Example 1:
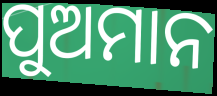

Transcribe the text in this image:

ପୁଅମାନ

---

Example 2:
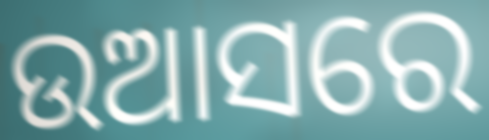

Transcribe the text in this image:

ଉଆସରେ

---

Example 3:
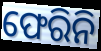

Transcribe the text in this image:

ଫେରିନି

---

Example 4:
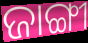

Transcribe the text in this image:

ଜାଙ୍ଗୀ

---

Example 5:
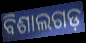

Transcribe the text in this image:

ବିଶାଲଗଡ଼